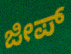
ಜೀಪ್